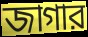
জাগার